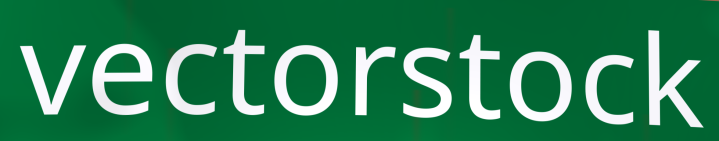
vectorstock